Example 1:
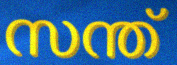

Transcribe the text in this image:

സന്ത്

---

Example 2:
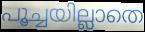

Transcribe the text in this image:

പൂച്ചയില്ലാതെ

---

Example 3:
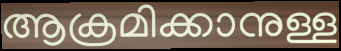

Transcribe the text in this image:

ആക്രമിക്കാനുള്ള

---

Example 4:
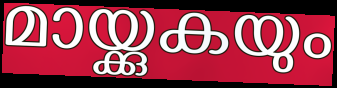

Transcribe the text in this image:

മായ്ക്കുകയും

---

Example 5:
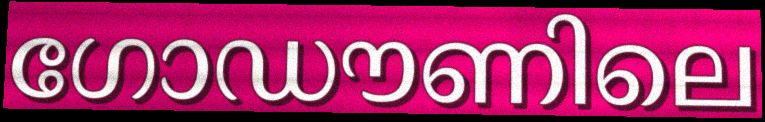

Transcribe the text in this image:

ഗോഡൗണിലെ